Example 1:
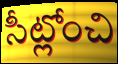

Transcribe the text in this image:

సీట్లోంచి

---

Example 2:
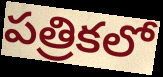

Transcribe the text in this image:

పత్రికలో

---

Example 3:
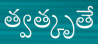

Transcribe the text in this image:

త్వత్కృతే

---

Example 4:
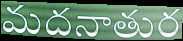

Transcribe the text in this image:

మదనాతుర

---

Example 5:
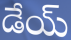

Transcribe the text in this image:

డేయ్